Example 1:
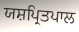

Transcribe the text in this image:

ਯਸ਼ਪ੍ਰਿਤਪਾਲ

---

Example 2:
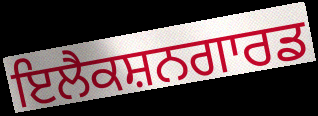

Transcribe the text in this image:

ਇਲੈਕਸ਼ਨਗਾਰਡ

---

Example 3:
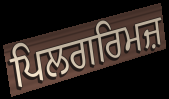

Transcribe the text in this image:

ਪਿਲਗਰਿਮਜ਼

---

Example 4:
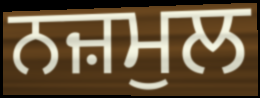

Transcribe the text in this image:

ਨਜ਼ਮੁਲ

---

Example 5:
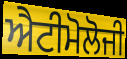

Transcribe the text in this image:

ਐਟੀਮੋਲੋਜੀ